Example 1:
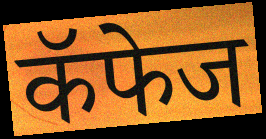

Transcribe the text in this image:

कॅफेज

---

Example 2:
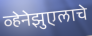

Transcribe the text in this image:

व्हेनेझुएलाचे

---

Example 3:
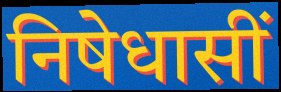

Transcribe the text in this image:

निषेधासीं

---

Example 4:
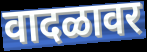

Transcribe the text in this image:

वादळावर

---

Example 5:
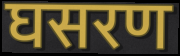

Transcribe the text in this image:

घसरण